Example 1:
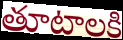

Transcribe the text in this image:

తూటాలకి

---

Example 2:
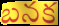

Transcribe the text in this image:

బనక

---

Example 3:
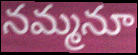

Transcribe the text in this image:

నమ్మనూ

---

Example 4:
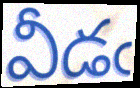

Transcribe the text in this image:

వీడఁ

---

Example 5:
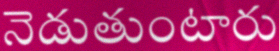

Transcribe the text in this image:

నెడుతుంటారు